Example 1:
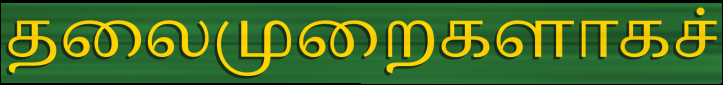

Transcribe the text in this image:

தலைமுறைகளாகச்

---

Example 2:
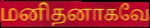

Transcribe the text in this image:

மனிதனாகவே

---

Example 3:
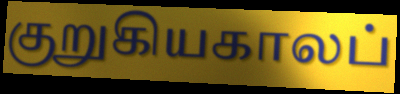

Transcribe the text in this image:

குறுகியகாலப்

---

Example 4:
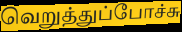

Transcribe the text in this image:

வெறுத்துப்போச்சு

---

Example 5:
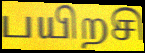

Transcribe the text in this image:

பயிறசி